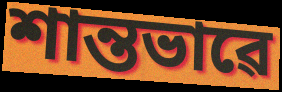
শান্তভাৱে